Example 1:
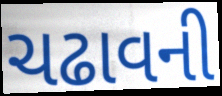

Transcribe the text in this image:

ચઢાવની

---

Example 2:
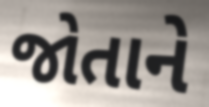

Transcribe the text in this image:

જોતાને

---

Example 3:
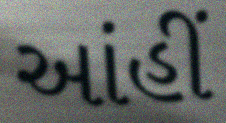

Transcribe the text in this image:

આંહીં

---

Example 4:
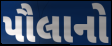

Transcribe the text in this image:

પૌલાનો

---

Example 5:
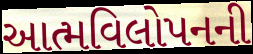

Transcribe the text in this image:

આત્મવિલોપનની